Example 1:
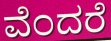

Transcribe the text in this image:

ವೆಂದರೆ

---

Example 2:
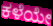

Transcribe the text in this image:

ಕಳೆಯೇ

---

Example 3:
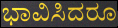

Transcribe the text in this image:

ಭಾವಿಸಿದರೂ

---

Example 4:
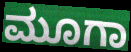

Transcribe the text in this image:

ಮೂಗಾ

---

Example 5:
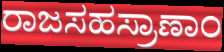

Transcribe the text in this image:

ರಾಜಸಹಸ್ರಾಣಾಂ